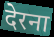
देरना